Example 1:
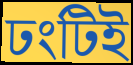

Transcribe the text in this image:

ঢংটিই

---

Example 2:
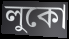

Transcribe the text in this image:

লুকো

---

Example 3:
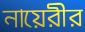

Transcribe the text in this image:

নায়েরীর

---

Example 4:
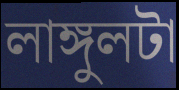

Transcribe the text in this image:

লাঙ্গুলটা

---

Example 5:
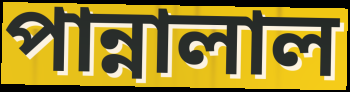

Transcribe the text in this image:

পান্নালাল